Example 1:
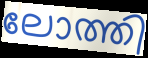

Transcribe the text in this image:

ലോത്തി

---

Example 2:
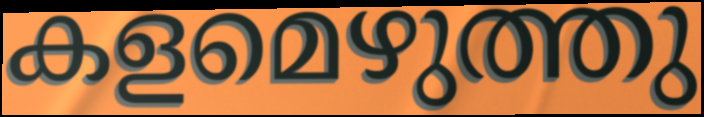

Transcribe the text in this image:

കളമെഴുത്തു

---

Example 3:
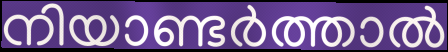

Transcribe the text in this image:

നിയാണ്ടർത്താൽ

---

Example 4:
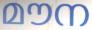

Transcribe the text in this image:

മൗന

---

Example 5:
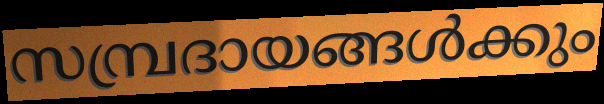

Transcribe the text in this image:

സമ്പ്രദായങ്ങൾക്കും